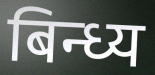
बिन्ध्य